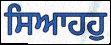
ਸਿਆਹਹੁ